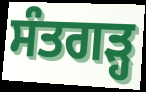
ਸੰਤਗੜ੍ਹ